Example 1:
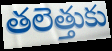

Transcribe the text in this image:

తలెత్తుకు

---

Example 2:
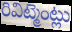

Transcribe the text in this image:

రివిట్మెంట్లు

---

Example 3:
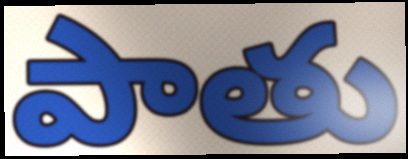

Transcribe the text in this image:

పాతు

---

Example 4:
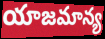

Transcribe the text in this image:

యాజమాన్య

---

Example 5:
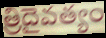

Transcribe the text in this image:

త్రిదైవత్యం